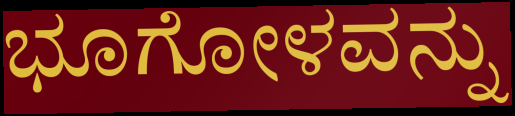
ಭೂಗೋಳವನ್ನು